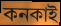
কনকাই